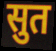
सुत